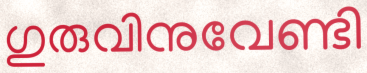
ഗുരുവിനുവേണ്ടി